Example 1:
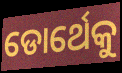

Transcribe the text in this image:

ଡୋର୍ଥେକୁ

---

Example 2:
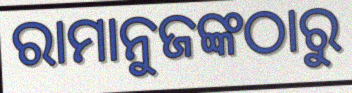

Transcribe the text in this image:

ରାମାନୁଜଙ୍କଠାରୁ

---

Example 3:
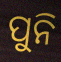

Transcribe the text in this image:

ପୁନି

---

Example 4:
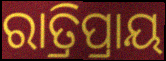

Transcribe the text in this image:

ରାତ୍ରିପ୍ରାୟ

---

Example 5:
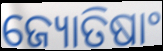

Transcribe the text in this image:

ଜ୍ୟୋତିଷାଂ